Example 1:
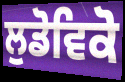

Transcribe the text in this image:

ਲੁਡੋਵਿਕੋ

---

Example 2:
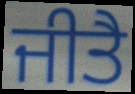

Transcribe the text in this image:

ਜੀਤੈ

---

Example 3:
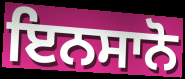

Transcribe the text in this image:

ਇਨਸਾਨੋ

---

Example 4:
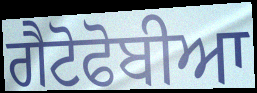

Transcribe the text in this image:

ਗੈਟੋਫੋਬੀਆ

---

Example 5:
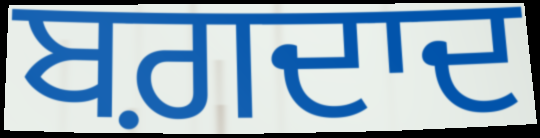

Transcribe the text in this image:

ਬ਼ਗਦਾਦ